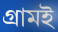
গ্রামই